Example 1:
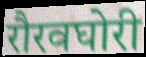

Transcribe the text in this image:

रौरवघोरी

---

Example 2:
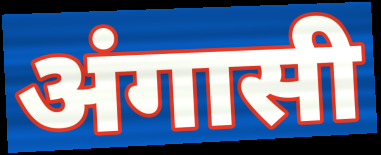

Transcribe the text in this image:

अंगासी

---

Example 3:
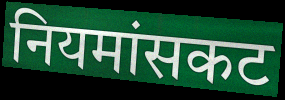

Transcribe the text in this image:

नियमांसकट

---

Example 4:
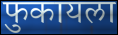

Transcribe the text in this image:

फुकायला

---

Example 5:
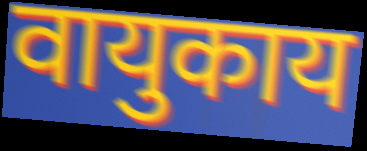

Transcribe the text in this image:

वायुकाय